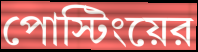
পোস্টিংয়ের